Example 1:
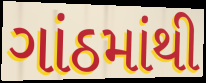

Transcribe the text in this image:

ગાંઠમાંથી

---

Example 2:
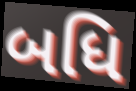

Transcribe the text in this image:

બધિ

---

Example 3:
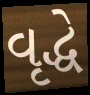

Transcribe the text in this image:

વૃદ્ધે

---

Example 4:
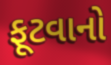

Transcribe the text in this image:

ફૂટવાનો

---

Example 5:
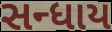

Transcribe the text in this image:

સન્ધાય